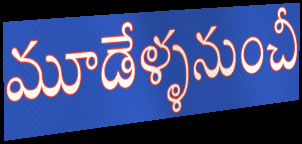
మూడేళ్ళనుంచీ